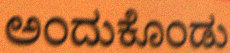
ಅಂದುಕೊಂಡು